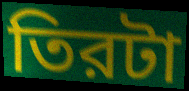
তিরটা